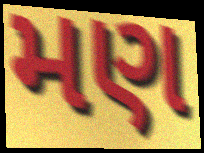
મણ